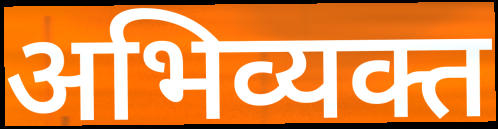
अभिव्यक्त